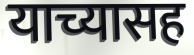
याच्यासह